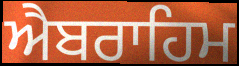
ਐਬਰਾਹਿਮ